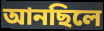
আনছিলে